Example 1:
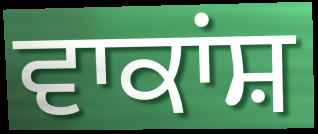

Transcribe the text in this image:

ਵਾਕਾਂਸ਼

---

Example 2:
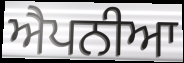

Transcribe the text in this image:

ਐਪਨੀਆ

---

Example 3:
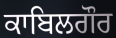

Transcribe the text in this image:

ਕਾਬਿਲਗੌਰ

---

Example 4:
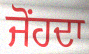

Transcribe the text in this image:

ਜੋਂਹਦਾ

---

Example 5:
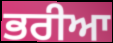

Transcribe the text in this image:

ਭਰੀਆ